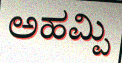
ಅಹಮ್ಪಿ